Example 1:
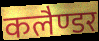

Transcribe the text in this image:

कलैण्डर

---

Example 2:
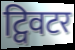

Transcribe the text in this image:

ट्विवटर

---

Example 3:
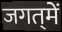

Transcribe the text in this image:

जगत्‌में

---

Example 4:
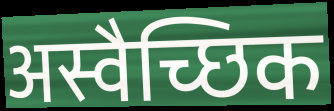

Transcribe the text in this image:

अस्वैच्छिक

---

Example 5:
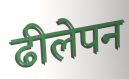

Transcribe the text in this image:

ढीलेपन